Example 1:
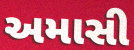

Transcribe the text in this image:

અમાસી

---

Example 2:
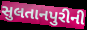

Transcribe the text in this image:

સુલતાનપુરીની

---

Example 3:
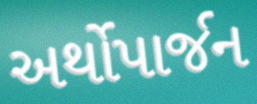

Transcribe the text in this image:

અર્થોપાર્જન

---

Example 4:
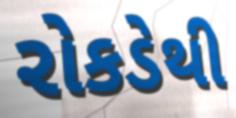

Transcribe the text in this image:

રોકડેથી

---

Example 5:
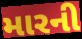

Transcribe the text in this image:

મારની